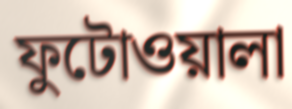
ফুটোওয়ালা